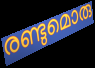
രണ്ടുമൊരു